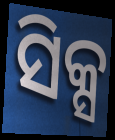
ସିକ୍ସ